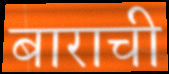
बाराची